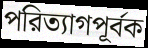
পরিত্যাগপূর্বক